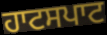
ਹਾਟਸਪਾਟ